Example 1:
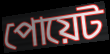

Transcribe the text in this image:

পোয়েট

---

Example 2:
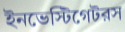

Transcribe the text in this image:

ইনভেস্টিগেটরস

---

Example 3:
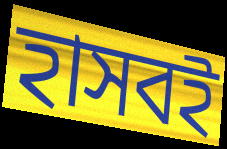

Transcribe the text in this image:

হাসবই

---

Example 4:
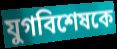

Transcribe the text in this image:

যুগবিশেষকে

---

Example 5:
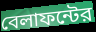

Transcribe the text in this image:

বেলাফন্টের